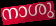
നാശു